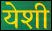
येशी